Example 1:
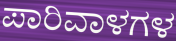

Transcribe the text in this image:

ಪಾರಿವಾಳಗಳ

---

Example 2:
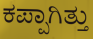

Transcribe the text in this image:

ಕಪ್ಪಾಗಿತ್ತು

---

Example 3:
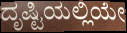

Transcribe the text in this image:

ದೃಷ್ಟಿಯಲ್ಲಿಯೇ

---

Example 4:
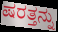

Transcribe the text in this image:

ಷರತ್ತನ್ನು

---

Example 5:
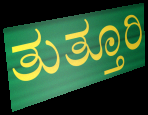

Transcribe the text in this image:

ತುತ್ತೂರಿ